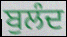
ਬੁਲੰਦ